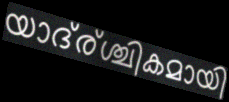
യാദ്ര്ശ്ചികമായി